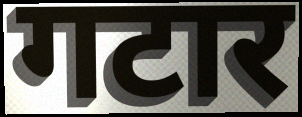
गटार